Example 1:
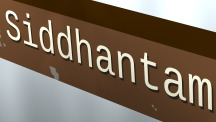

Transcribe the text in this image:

Siddhantam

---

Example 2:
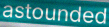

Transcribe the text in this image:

astounded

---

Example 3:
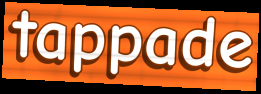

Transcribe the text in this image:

tappade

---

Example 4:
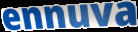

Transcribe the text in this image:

ennuva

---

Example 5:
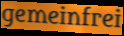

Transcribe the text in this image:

gemeinfrei